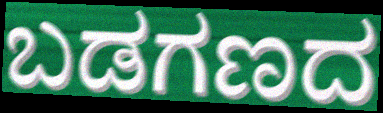
ಬಡಗಣದ